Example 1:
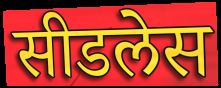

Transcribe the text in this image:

सीडलेस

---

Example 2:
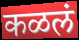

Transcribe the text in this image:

कळलं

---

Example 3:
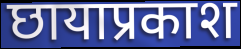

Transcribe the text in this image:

छायाप्रकाश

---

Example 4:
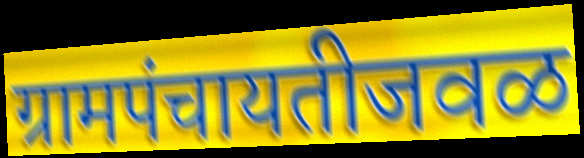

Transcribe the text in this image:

ग्रामपंचायतीजवळ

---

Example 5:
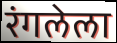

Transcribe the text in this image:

रंगलेला